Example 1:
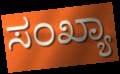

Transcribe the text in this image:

ಸಂಖ್ಯಾ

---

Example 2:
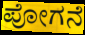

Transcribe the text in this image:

ಪೋಗನೆ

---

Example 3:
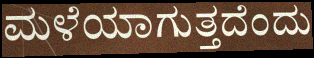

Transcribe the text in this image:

ಮಳೆಯಾಗುತ್ತದೆಂದು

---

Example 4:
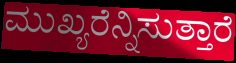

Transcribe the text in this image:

ಮುಖ್ಯರೆನ್ನಿಸುತ್ತಾರೆ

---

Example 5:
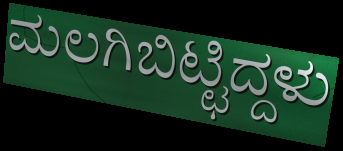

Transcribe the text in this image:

ಮಲಗಿಬಿಟ್ಟಿದ್ದಳು